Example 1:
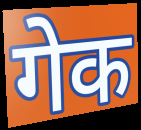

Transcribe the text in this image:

गेक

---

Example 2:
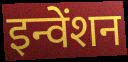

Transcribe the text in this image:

इन्वेंशन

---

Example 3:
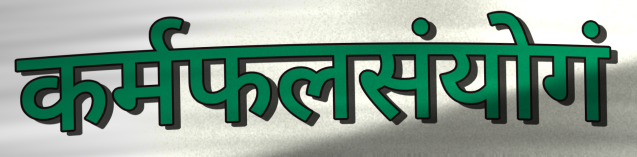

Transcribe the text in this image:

कर्मफलसंयोगं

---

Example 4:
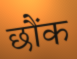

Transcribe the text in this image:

छौंक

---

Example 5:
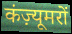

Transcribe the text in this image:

कंज़्यूमरों